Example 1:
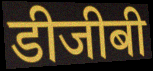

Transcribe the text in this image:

डीजीबी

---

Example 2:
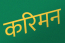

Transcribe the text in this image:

करिमन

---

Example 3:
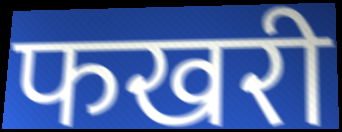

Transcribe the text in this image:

फखरी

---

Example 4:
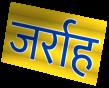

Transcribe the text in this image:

जर्राह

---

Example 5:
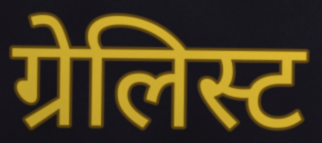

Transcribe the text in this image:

ग्रेलिस्ट